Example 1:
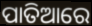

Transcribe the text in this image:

ପାତିଆରେ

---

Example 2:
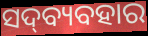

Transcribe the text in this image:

ସଦ୍‍ବ୍ୟବହାର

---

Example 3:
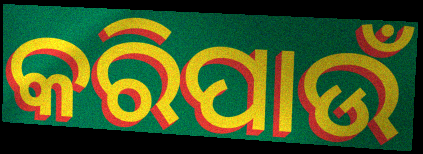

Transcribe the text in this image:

କରିପାଉଁ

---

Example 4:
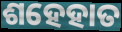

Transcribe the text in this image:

ଶହେହାତ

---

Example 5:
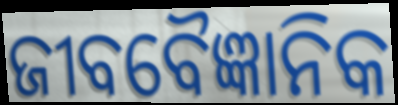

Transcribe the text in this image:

ଜୀବବୈଜ୍ଞାନିକ